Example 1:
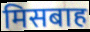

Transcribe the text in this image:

मिसबाह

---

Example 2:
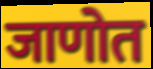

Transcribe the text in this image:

जाणोत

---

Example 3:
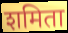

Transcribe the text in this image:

शमिता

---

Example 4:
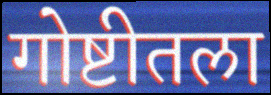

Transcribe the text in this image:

गोष्टीतला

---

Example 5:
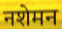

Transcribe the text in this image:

नशेमन